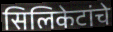
सिलिकेटांचे